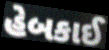
હેબકાઈ